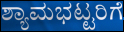
ಶ್ಯಾಮಭಟ್ಟರಿಗೆ